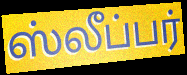
ஸ்லீப்பர்